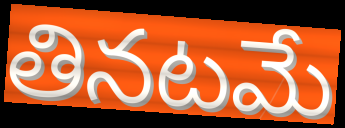
తినటమే